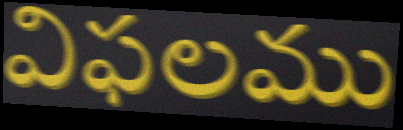
విఫలము